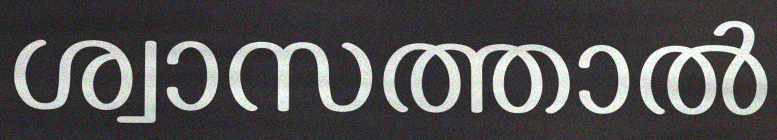
ശ്വാസത്താൽ